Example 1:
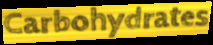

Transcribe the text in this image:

Carbohydrates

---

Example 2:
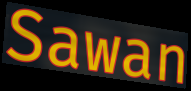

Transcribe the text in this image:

Sawan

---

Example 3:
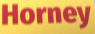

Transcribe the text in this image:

Horney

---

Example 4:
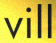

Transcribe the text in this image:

vill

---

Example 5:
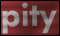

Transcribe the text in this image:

pity